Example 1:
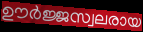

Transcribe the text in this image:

ഊർജ്ജസ്വലരായ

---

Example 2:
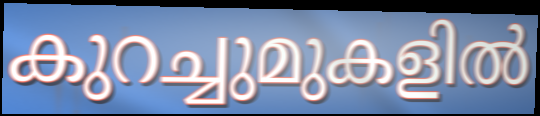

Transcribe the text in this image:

കുറച്ചുമുകളിൽ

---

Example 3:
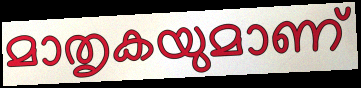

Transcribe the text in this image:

മാതൃകയുമാണ്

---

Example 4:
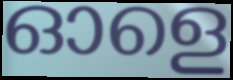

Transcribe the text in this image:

ഓളെ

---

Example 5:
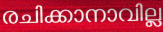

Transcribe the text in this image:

രചിക്കാനാവില്ല